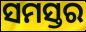
ସମସ୍ତର